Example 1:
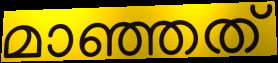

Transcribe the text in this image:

മാഞ്ഞത്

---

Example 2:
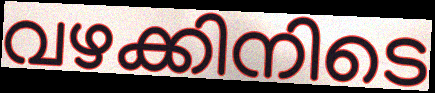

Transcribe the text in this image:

വഴക്കിനിടെ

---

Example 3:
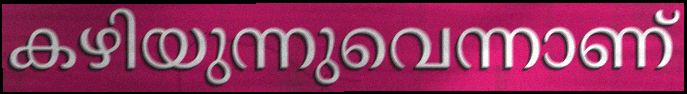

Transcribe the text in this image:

കഴിയുന്നുവെന്നാണ്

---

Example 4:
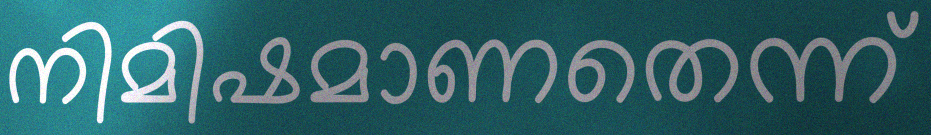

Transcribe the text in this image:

നിമിഷമാണതെന്ന്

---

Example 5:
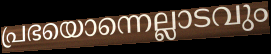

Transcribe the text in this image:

പ്രഭയൊന്നെല്ലാടവും